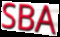
SBA